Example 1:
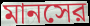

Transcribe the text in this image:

মানসের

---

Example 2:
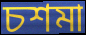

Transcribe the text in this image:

চশমা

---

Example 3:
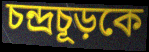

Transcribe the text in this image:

চন্দ্রচূড়কে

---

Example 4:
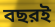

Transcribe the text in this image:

বছরই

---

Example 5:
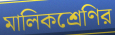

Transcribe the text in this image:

মালিকশ্রেণির